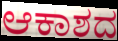
ಆಕಾಶದ